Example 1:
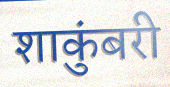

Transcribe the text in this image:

शाकुंबरी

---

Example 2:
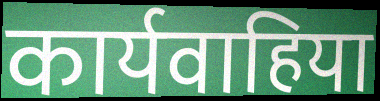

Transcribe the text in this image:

कार्यवाहिया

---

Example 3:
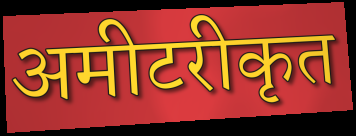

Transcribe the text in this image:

अमीटरीकृत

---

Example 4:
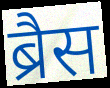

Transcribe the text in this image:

ब्रैस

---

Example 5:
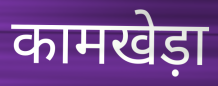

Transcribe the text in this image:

कामखेड़ा